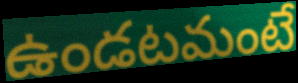
ఉండటమంటే